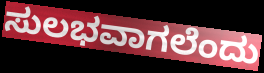
ಸುಲಭವಾಗಲೆಂದು